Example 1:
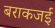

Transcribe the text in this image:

बराकजई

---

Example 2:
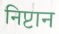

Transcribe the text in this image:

निप्टान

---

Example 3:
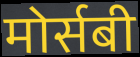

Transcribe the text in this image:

मोर्सबी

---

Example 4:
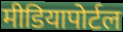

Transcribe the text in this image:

मीडियापोर्टल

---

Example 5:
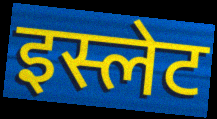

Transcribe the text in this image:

इस्लेट